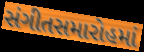
સંગીતસમારોહમાં